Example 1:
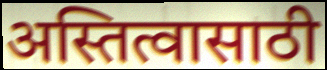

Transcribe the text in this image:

अस्तित्वासाठी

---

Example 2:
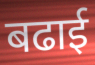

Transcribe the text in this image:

बढाई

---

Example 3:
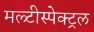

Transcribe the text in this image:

मल्टीस्पेक्ट्रल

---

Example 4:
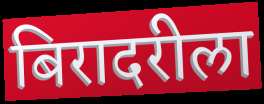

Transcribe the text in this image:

बिरादरीला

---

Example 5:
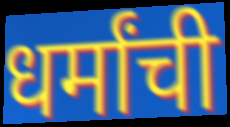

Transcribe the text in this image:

धर्मांची